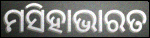
ମସିହାଭାରତ